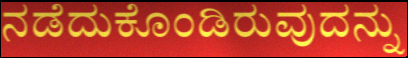
ನಡೆದುಕೊಂಡಿರುವುದನ್ನು